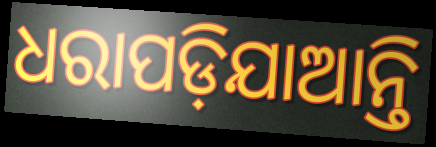
ଧରାପଡ଼ିଯାଆନ୍ତି